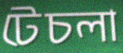
টেচলা